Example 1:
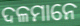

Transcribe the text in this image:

ଦଳମାନେ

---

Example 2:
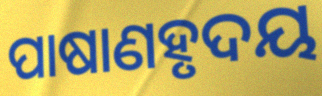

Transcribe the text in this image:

ପାଷାଣହୃଦୟ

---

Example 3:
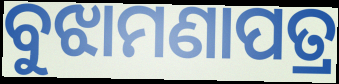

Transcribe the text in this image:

ବୁଝାମଣାପତ୍ର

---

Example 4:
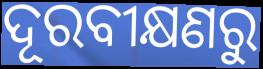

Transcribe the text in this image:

ଦୂରବୀକ୍ଷଣରୁ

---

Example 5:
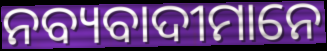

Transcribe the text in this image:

ନବ୍ୟବାଦୀମାନେ